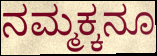
ನಮ್ಮಕ್ಕನೂ